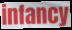
infancy